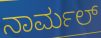
ನಾರ್ಮಲ್